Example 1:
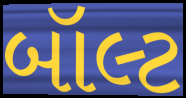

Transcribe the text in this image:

બૉલ્ટ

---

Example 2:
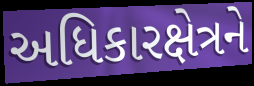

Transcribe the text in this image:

અધિકારક્ષેત્રને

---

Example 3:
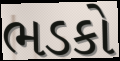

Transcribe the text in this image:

ભડકો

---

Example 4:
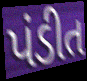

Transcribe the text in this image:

પંડીત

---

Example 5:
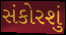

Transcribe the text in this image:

સંકોરશું